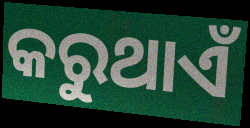
କରୁଥାଏଁ